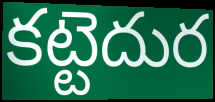
కట్టెదుర